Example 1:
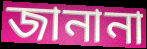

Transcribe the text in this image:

জানানা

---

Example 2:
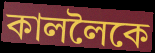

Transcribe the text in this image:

কাললৈকে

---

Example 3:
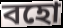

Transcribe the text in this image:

বহো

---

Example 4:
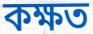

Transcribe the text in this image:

কক্ষত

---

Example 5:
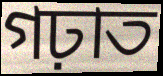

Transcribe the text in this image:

গঢ়াত